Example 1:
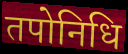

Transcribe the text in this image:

तपोनिधि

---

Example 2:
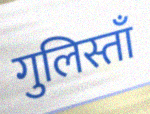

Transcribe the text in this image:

गुलिस्ताँ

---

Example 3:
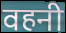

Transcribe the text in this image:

वहनी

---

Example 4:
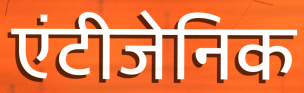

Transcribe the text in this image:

एंटीजेनिक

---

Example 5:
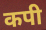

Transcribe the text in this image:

कपी